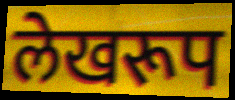
लेखरूप